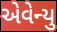
એવેન્યુ